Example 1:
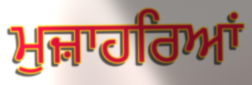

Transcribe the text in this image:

ਮੁਜ਼ਾਹਰਿਆਂ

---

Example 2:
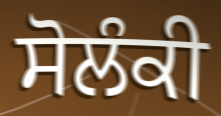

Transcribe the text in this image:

ਸੋਲੰਕੀ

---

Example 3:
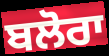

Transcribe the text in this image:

ਬਲੋਰਾ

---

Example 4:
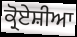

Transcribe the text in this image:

ਕ੍ਰੋਏਸ਼ੀਆ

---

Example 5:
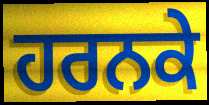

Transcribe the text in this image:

ਹਰਨਕੇ